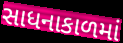
સાધનાકાળમાં